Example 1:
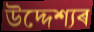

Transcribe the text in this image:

উদ্দেশ্যৰ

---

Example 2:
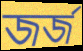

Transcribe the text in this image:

জৰ্জ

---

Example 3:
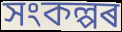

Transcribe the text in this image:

সংকল্পৰ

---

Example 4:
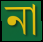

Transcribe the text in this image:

না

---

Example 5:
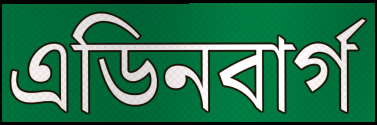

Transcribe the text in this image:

এডিনবাৰ্গ